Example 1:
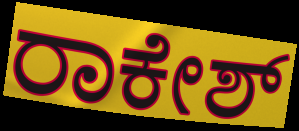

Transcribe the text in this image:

ರಾಕೇಶ್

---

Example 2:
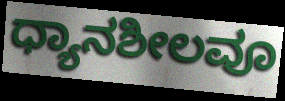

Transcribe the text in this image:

ಧ್ಯಾನಶೀಲವೂ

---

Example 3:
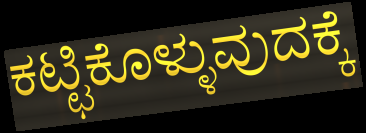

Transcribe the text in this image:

ಕಟ್ಟಿಕೊಳ್ಳುವುದಕ್ಕೆ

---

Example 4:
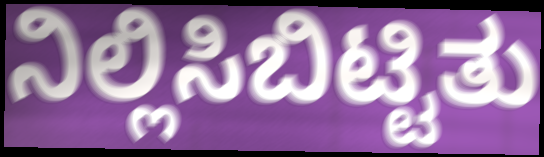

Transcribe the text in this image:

ನಿಲ್ಲಿಸಿಬಿಟ್ಟಿತು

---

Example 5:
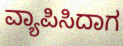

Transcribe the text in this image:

ವ್ಯಾಪಿಸಿದಾಗ